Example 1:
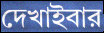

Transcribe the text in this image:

দেখাইবার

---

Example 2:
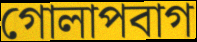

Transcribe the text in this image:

গোলাপবাগ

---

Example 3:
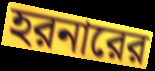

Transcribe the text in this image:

হরনারের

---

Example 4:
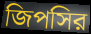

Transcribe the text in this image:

জিপসির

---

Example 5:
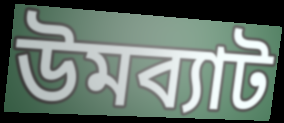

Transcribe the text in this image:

উমব্যাট